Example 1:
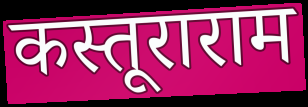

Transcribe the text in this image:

कस्तूराराम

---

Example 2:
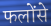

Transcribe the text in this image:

फलोंसे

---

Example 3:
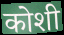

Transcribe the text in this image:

कोशी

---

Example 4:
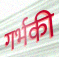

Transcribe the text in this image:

गर्भकी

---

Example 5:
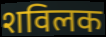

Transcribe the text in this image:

शविलक